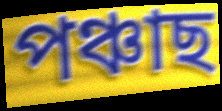
পঞ্চাছ